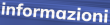
informazioni